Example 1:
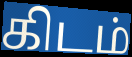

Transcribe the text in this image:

கிடம்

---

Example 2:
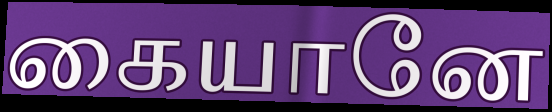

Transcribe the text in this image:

கையானே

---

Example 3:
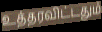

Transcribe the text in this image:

உத்தரவிட்டதும்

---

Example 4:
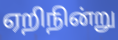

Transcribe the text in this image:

ஏறிநின்று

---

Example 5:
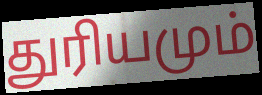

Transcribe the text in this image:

துரியமும்